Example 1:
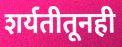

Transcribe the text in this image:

शर्यतीतूनही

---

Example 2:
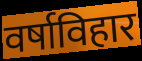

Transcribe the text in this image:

वर्षाविहार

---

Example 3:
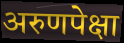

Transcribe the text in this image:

अरुणपेक्षा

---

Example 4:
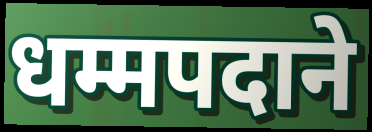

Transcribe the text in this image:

धम्मपदाने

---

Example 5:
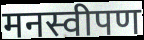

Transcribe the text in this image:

मनस्वीपण